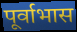
पूर्वाभास